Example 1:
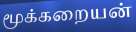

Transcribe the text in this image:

மூக்கறையன்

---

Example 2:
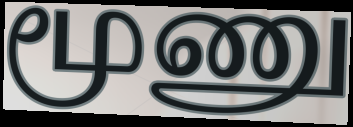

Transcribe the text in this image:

மூணு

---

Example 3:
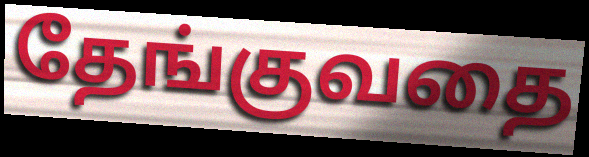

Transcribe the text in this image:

தேங்குவதை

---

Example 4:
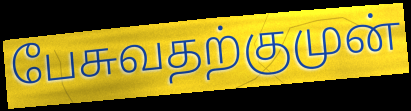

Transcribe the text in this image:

பேசுவதற்குமுன்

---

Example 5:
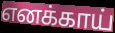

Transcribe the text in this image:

எனக்காய்